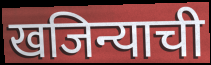
खजिन्याची